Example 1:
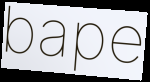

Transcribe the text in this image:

bape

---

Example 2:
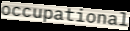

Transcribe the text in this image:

occupational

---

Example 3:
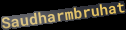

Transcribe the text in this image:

Saudharmbruhat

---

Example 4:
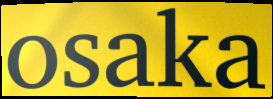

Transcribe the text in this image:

osaka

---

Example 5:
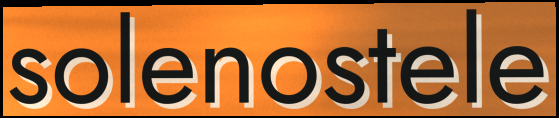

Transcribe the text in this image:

solenostele